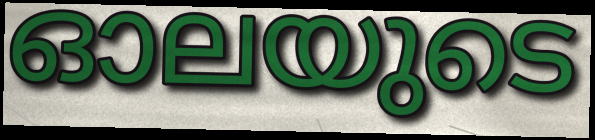
ഓലയുടെ